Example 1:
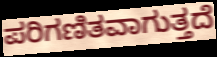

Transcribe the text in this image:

ಪರಿಗಣಿತವಾಗುತ್ತದೆ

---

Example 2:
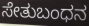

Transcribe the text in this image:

ಸೇತುಬಂಧನ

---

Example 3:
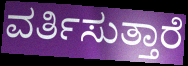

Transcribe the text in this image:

ವರ್ತಿಸುತ್ತಾರೆ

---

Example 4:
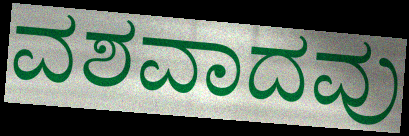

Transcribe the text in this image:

ವಶವಾದವು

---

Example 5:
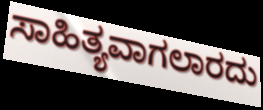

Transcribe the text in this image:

ಸಾಹಿತ್ಯವಾಗಲಾರದು